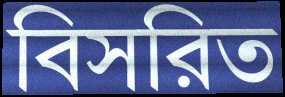
বিসরিত